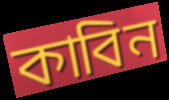
কাবিন